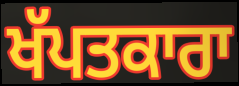
ਖੱਪਤਕਾਰਾ